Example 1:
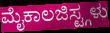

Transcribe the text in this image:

ಮೈಕಾಲಜಿಸ್ಟ್ಗಳು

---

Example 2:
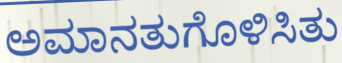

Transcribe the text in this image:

ಅಮಾನತುಗೊಳಿಸಿತು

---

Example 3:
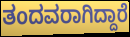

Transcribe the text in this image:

ತಂದವರಾಗಿದ್ದಾರೆ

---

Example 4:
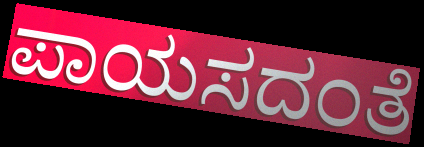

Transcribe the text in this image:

ಪಾಯಸದಂತೆ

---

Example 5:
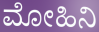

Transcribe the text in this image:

ಮೋಹಿನಿ